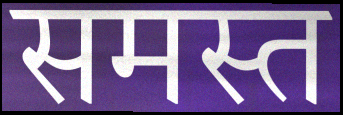
समस्त